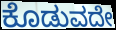
ಕೊಡುವದೇ